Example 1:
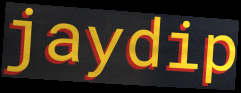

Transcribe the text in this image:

jaydip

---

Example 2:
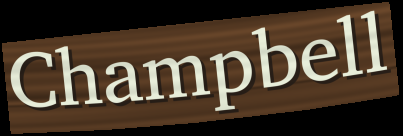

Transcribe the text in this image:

Champbell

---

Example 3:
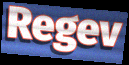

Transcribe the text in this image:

Regev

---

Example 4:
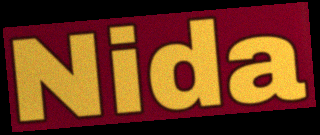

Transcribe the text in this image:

Nida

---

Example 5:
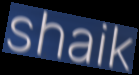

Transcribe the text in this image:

shaik